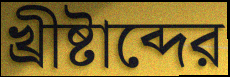
খ্রীষ্টাব্দের